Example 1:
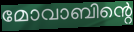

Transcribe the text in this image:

മോവാബിന്റെ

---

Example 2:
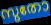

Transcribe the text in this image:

സുതോ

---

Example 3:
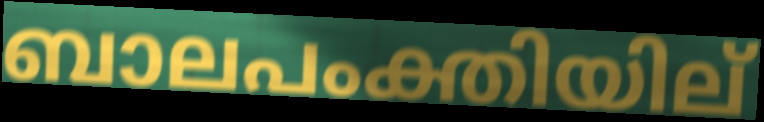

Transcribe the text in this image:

ബാലപംക്തിയില്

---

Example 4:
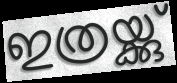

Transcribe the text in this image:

ഇത്രയ്ക്കു്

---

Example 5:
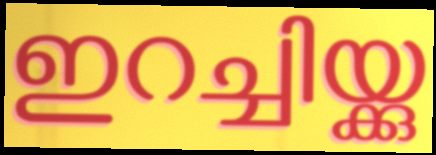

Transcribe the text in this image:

ഇറച്ചിയ്ക്കു